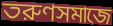
তরুণসমাজে